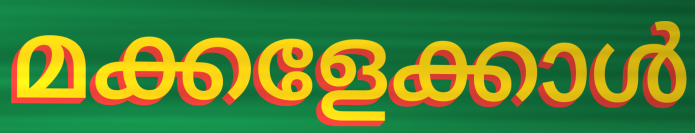
മക്കളേക്കാൾ